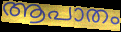
ആപാതം